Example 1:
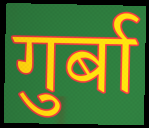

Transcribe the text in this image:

गुर्बा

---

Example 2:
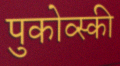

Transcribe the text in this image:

पुकोव्स्की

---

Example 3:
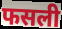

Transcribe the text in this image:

फसली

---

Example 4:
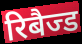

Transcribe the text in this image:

रिबैज्ड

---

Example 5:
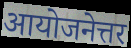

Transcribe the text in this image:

आयोजनेत्तर